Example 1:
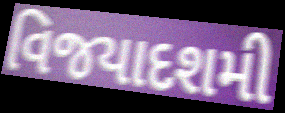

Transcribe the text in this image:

વિજયાદશમી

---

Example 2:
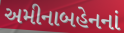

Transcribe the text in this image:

અમીનાબહેનનાં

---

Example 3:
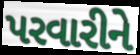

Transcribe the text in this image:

પરવારીને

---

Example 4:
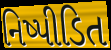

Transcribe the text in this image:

નિષ્પીડિત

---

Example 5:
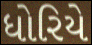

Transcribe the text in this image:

ધોરિયે